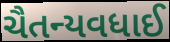
ચૈતન્યવધાઈ